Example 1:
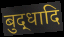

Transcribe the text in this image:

बुद्धादि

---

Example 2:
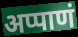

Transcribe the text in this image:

अप्पाणं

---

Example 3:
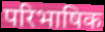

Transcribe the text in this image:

परिभाषिक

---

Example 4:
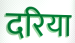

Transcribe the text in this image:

दरिया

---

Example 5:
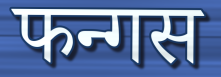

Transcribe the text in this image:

फन्गस